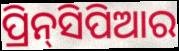
ପ୍ରିନ୍‌ସିପିଆର